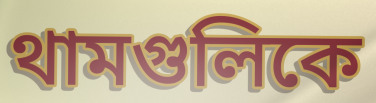
থামগুলিকে